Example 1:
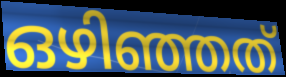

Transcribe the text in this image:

ഒഴിഞ്ഞത്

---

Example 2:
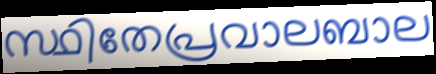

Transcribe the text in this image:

സ്ഥിതേപ്രവാലബാല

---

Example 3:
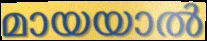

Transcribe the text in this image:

മായയാൽ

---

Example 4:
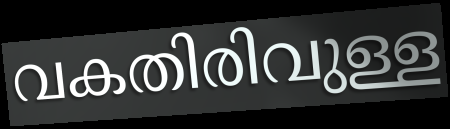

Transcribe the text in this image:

വകതിരിവുള്ള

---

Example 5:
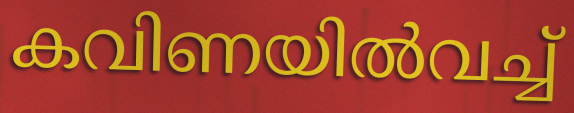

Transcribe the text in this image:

കവിണയിൽവച്ച്